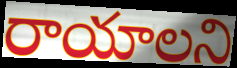
రాయాలని